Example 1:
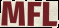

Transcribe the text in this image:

MFL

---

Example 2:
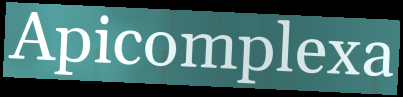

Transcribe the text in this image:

Apicomplexa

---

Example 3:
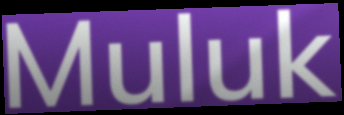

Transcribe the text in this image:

Muluk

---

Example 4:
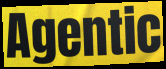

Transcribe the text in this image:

Agentic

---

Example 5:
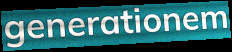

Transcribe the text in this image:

generationem